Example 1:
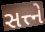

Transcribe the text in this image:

સત્ત્ને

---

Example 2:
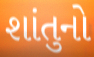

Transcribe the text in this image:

શાંતુનો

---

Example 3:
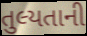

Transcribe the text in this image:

તુલ્યતાની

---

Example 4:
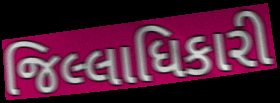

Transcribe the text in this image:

જિલ્લાધિકારી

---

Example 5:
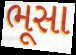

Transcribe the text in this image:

ભૂસા